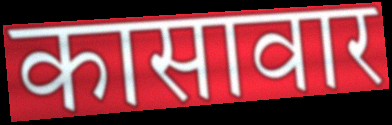
कासावार